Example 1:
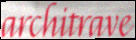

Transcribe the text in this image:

architrave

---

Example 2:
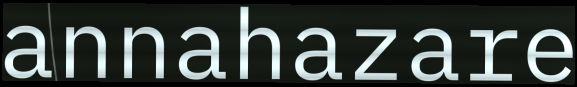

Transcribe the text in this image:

annahazare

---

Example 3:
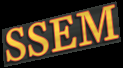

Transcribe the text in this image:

SSEM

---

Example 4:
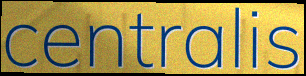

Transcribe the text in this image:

centralis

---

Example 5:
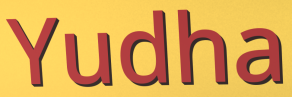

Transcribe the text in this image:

Yudha